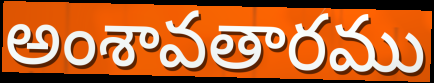
అంశావతారము